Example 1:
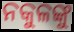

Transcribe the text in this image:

ନକୁଳଙ୍କୁ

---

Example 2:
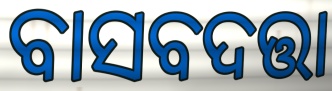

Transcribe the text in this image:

ବାସବଦତ୍ତା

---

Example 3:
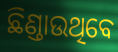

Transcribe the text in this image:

ଛିଣ୍ଡାଉଥିବେ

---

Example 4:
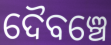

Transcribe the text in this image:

ଦୈବଞ୍ଚେ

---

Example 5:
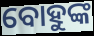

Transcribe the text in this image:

ବୋହୁଙ୍କ